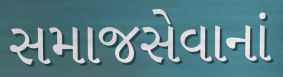
સમાજસેવાનાં